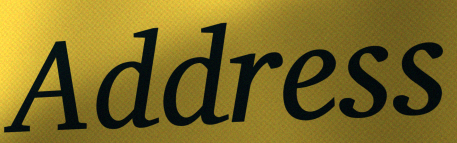
Address